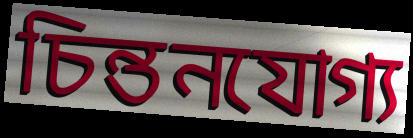
চিন্তনযোগ্য